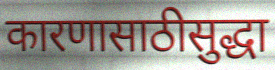
कारणासाठीसुद्धा